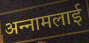
अन्‍नामलाई